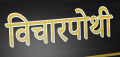
विचारपोथी